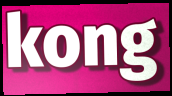
kong